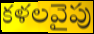
కళలవైపు